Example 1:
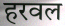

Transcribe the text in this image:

हरवल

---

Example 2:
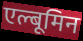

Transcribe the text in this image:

एल्बूमिन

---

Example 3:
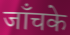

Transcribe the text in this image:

जाँचके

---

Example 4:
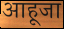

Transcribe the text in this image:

आहूजा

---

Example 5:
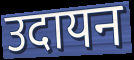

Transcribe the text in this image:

उदायन